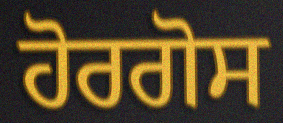
ਹੋਰਗੋਸ